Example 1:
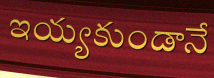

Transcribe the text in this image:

ఇయ్యకుండానే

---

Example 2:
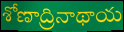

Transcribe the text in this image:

శోణాద్రినాథాయ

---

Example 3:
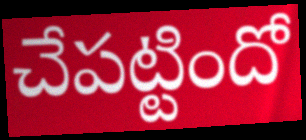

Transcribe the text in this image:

చేపట్టిందో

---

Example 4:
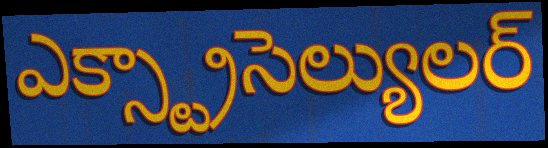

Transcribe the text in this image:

ఎక్స్ట్రాసెల్యులర్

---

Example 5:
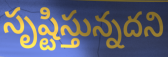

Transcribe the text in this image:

సృష్టిస్తున్నదని